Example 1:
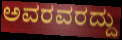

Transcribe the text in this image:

ಅವರವರದ್ದು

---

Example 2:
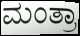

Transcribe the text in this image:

ಮಂತ್ರಾ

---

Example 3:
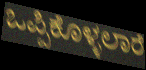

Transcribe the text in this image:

ಒಪ್ಪಿಕೊಳ್ಳಲಾರೆ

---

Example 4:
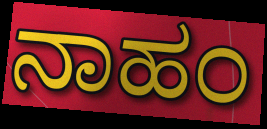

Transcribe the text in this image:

ನಾಹಂ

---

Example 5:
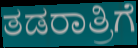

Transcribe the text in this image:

ತಡರಾತ್ರಿಗೆ